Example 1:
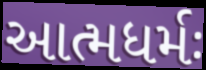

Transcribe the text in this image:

આત્મધર્મઃ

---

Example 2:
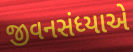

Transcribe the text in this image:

જીવનસંધ્યાએ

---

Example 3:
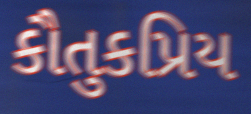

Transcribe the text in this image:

કૌતુકપ્રિય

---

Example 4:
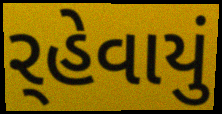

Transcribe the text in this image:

ર્‌હેવાયું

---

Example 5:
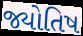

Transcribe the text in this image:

જ્યોતિષ